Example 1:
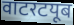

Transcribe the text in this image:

वाटरटयूब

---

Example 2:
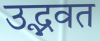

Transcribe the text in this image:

उद्भवत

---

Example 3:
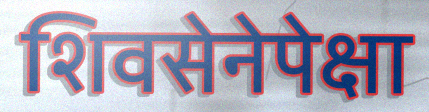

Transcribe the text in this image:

शिवसेनेपेक्षा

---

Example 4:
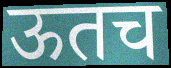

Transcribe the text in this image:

ऊतच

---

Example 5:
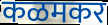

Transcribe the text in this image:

कळमकर